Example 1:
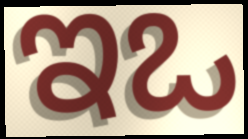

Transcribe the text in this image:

ಇಒ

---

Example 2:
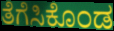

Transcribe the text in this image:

ತೆಗೆಸಿಕೊಂಡ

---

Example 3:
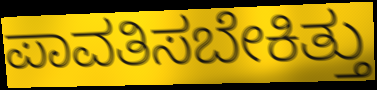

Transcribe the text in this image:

ಪಾವತಿಸಬೇಕಿತ್ತು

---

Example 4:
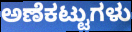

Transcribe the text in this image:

ಅಣೆಕಟ್ಟುಗಳು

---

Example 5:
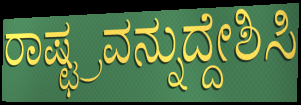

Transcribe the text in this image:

ರಾಷ್ಟ್ರವನ್ನುದ್ದೇಶಿಸಿ